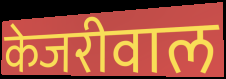
केजरीवाल